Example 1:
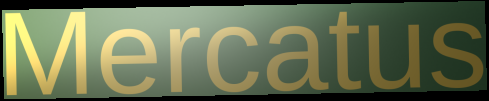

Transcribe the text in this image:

Mercatus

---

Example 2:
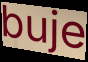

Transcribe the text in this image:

buje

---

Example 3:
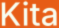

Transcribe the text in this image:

Kita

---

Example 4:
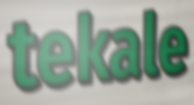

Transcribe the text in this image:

tekale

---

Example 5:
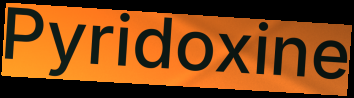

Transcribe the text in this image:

Pyridoxine